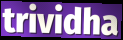
trividha